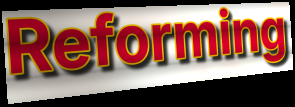
Reforming